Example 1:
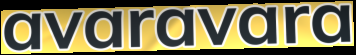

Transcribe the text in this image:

avaravara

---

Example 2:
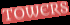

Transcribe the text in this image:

TOWERS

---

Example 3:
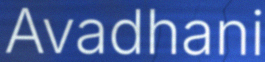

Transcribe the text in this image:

Avadhani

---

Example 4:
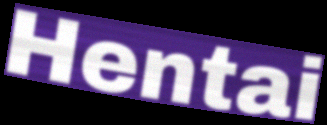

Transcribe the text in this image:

Hentai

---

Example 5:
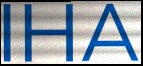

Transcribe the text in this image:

IHA